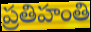
ప్రతిహంతి